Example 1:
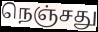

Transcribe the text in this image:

நெஞ்சது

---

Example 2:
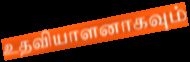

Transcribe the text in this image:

உதவியாளனாகவும்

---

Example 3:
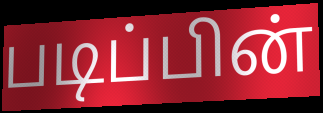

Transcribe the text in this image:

படிப்பின்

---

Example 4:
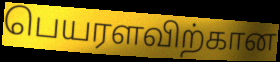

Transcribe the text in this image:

பெயரளவிற்கான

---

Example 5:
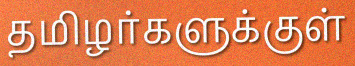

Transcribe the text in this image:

தமிழர்களுக்குள்